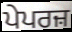
ਪੇਪਰਜ਼